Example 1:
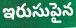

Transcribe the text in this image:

ఇరుసుపైన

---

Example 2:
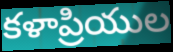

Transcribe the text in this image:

కళాప్రియుల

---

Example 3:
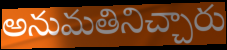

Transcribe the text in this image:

అనుమతినిచ్చారు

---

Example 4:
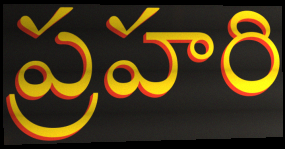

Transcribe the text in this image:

ప్రహరి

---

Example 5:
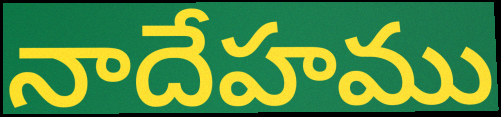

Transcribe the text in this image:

నాదేహము